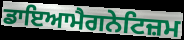
ਡਾਇਆਮੈਗਨੇਟਿਜ਼ਮ